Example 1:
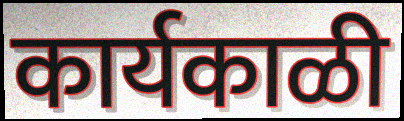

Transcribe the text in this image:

कार्यकाळी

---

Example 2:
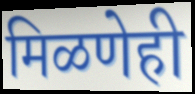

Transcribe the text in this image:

मिळणेही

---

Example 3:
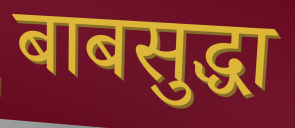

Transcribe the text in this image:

बाबसुद्धा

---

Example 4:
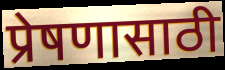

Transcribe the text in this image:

प्रेषणासाठी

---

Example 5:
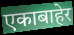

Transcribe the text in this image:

एकाबाहेर